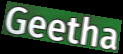
Geetha